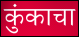
कुंकाचा